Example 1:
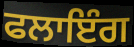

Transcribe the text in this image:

ਫਲਾਇੰਗ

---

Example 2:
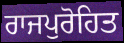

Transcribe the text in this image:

ਰਾਜਪੁਰੋਹਿਤ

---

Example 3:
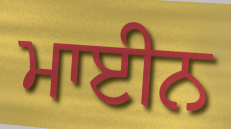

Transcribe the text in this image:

ਮਾਈਨ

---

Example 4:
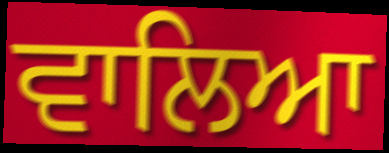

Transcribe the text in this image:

ਵਾਲਿਆ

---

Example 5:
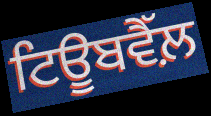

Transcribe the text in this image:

ਟਿਊਬਵੈੱਲ਼